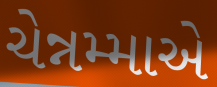
ચેન્નમ્માએ